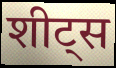
शीट्स